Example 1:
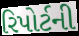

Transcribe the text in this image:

રિપોર્ટની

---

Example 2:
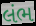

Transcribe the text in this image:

લંભ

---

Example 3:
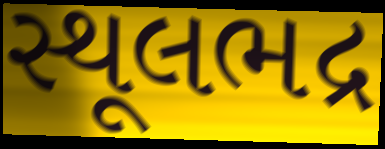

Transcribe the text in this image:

સ્થૂલભદ્ર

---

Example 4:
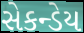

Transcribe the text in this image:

સેકન્ડેય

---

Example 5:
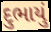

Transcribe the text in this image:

દુભાયું